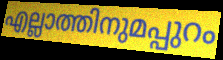
എല്ലാത്തിനുമപ്പുറം